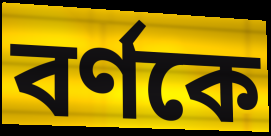
বর্ণকে